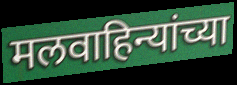
मलवाहिन्यांच्या